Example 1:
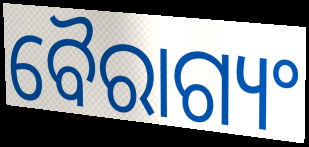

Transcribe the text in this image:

ବୈରାଗ୍ୟଂ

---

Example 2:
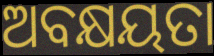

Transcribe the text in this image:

ଅବକ୍ଷୟତା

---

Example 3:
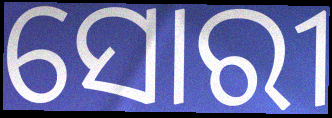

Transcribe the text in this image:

ସୋରୀ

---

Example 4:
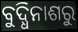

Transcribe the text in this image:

ବୁଦ୍ଧିନାଶରୁ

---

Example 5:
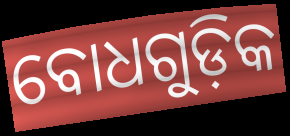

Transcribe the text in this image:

ବୋଧଗୁଡ଼ିକ